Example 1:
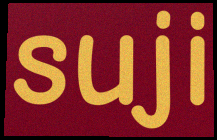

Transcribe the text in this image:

suji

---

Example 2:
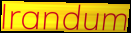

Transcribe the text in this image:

Irandum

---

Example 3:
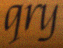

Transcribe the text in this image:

qry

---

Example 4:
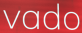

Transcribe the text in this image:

vado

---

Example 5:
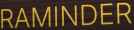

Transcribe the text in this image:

RAMINDER